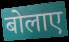
बोलाए